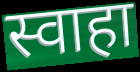
स्वाहा